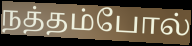
நத்தம்போல்